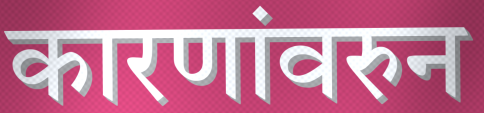
कारणांवरुन